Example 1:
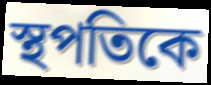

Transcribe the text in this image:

স্থপতিকে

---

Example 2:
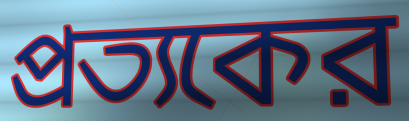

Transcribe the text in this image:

প্রত্যকের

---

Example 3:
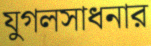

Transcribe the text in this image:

যুগলসাধনার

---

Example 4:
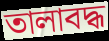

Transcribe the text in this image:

তালাবদ্ধ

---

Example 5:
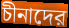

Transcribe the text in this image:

চীনাদের